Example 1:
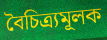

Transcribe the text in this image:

বৈচিত্ৰ্যমূলক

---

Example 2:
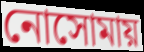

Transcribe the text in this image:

নোসোমায়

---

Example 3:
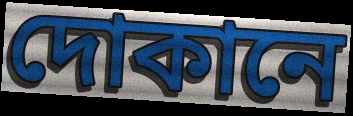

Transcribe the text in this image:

দোকানে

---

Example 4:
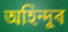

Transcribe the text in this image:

অহিন্দুৰ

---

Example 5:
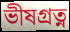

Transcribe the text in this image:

ভীষগ্ৰত্ন